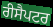
ਰੀਸੈਪਟਰ